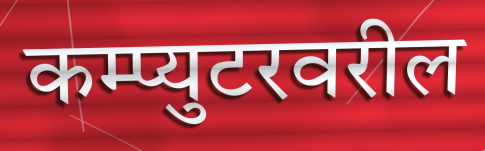
कम्प्युटरवरील